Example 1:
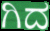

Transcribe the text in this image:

ಗಿದ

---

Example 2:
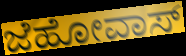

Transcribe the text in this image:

ಜೆಹೋವಾಸ್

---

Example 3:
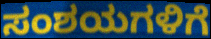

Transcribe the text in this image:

ಸಂಶಯಗಳಿಗೆ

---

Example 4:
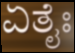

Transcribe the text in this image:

ಏತೈಃ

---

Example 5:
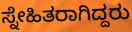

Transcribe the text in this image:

ಸ್ನೇಹಿತರಾಗಿದ್ದರು